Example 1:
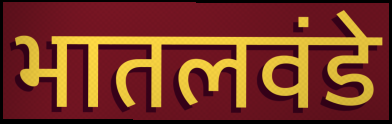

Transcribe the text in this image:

भातलवंडे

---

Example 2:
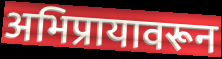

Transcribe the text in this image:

अभिप्रायावरून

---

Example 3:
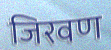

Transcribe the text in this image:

जिरवण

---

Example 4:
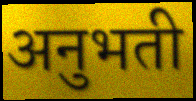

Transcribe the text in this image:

अनुभती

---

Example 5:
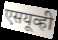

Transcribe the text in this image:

एसयूव्ही